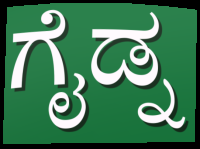
ಗೈಡ್ನ